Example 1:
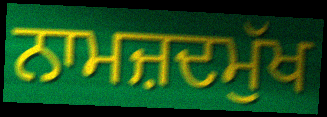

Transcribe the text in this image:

ਨਾਮਜ਼ਦਮੁੱਖ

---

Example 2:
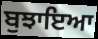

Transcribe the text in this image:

ਬੁਝਾਇਆ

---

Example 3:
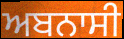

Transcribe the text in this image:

ਅਬਨਾਸੀ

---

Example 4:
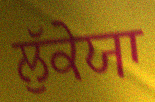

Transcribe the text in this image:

ਲੁੱਕੇਯਾ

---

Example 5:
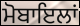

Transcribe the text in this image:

ਮੋਬਾਇਲਾਂ